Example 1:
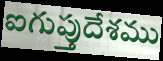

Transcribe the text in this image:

ఐగుప్తుదేశము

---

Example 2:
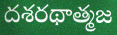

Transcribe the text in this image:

దశరథాత్మజ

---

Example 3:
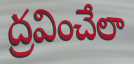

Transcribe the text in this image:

ద్రవించేలా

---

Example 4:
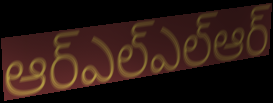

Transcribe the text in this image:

ఆర్ఎల్ఎల్ఆర్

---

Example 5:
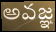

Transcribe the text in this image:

అవజ్ఞ